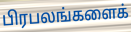
பிரபலங்களைக்